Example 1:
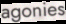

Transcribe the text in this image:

agonies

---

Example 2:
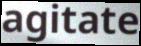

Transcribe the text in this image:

agitate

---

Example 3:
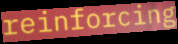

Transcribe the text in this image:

reinforcing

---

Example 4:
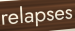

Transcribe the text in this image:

relapses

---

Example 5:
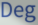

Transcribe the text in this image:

Deg